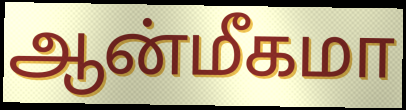
ஆன்மீகமா